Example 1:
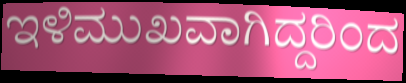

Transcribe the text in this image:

ಇಳಿಮುಖವಾಗಿದ್ದರಿಂದ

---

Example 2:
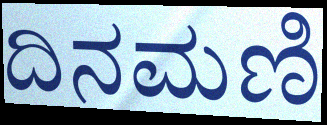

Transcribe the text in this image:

ದಿನಮಣಿ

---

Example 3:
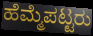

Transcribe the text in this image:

ಹೆಮ್ಮೆಪಟ್ಟರು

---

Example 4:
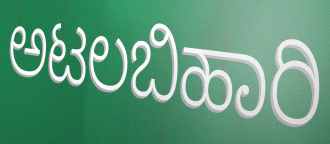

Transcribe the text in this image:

ಅಟಲಬಿಹಾರಿ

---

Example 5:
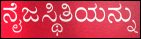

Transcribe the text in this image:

ನೈಜಸ್ಥಿತಿಯನ್ನು